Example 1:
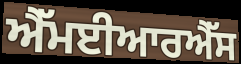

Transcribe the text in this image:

ਐੱਮਈਆਰਐੱਸ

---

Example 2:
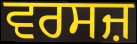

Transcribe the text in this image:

ਵਰਸਜ਼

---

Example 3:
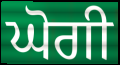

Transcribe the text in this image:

ਘੋਗੀ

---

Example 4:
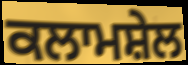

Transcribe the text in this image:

ਕਲਾਮਸ਼ੇਲ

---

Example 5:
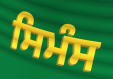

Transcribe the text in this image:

ਸਿਮੰਸ